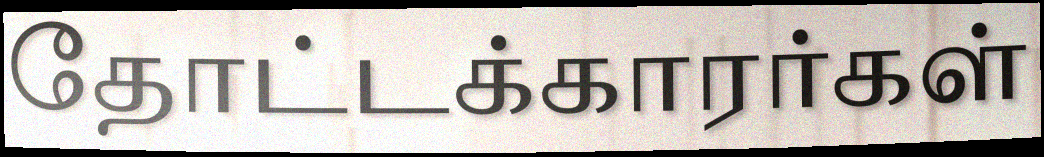
தோட்டக்காரர்கள்